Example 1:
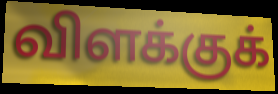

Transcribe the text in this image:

விளக்குக்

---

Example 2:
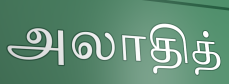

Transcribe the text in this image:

அலாதித்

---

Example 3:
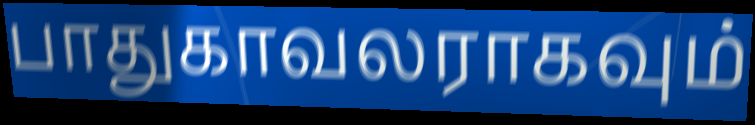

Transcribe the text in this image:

பாதுகாவலராகவும்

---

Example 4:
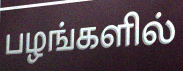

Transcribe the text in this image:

பழங்களில்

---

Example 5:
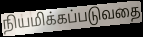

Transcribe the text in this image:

நியமிக்கப்படுவதை